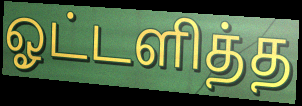
ஓட்டளித்த